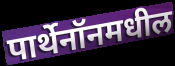
पार्थेनॉनमधील